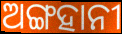
ଅଙ୍ଗହାନୀ